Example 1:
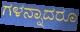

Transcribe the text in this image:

ಗಳನ್ನಾದರೂ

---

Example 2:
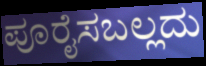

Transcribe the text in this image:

ಪೂರೈಸಬಲ್ಲದು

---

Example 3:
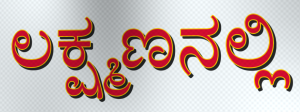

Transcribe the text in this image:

ಲಕ್ಷ್ಮಣನಲ್ಲಿ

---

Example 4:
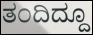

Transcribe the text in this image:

ತಂದಿದ್ದೂ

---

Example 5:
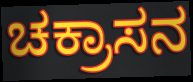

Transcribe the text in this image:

ಚಕ್ರಾಸನ